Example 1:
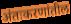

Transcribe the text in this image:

अंतःकरणांतील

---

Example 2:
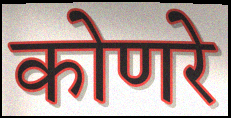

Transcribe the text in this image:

कोणरे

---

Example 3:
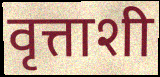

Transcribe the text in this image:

वृत्ताशी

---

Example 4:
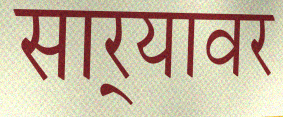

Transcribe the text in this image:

सार्यावर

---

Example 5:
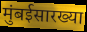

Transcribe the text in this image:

मुंबईसारख्या